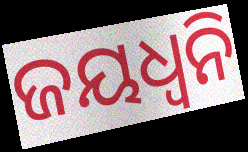
ଜୟଧ୍ୱନି